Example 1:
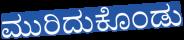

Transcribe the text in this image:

ಮುರಿದುಕೊಂಡು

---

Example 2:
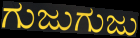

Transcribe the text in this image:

ಗುಜುಗುಜು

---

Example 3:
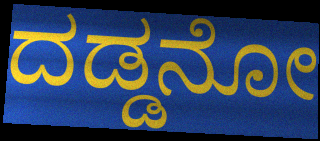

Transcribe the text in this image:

ದಡ್ಡನೋ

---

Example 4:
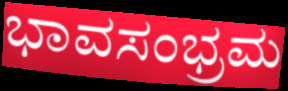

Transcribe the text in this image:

ಭಾವಸಂಭ್ರಮ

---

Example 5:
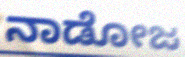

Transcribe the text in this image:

ನಾಡೋಜ